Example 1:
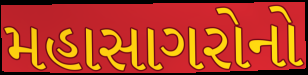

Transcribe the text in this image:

મહાસાગરોનો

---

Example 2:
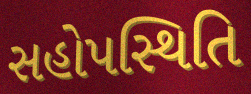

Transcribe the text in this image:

સહોપસ્થિતિ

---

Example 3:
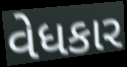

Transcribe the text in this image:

વેધકાર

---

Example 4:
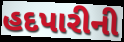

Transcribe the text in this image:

હદપારીની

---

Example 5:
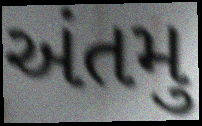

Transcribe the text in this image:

અંતમુ